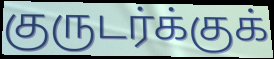
குருடர்க்குக்